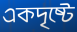
একদৃষ্টে